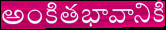
అంకితభావానికి